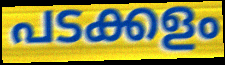
പടക്കളം